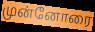
முன்னோரை